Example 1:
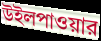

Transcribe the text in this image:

উইলপাওয়ার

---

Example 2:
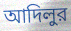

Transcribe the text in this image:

আদিলুর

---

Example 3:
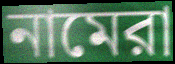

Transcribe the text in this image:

নামেরা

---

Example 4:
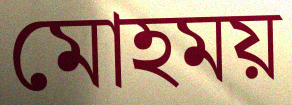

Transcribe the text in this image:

মোহময়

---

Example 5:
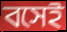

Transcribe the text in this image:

বসেই